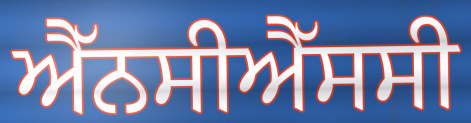
ਐੱਨਸੀਐੱਸਸੀ